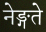
नेङ्गते